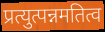
प्रत्युत्पन्नमतित्व